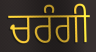
ਚਰੰਗੀ